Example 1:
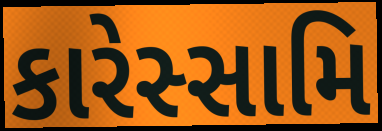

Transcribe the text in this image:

કારેસ્સામિ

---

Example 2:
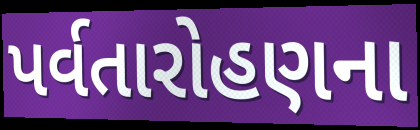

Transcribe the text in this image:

પર્વતારોહણના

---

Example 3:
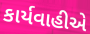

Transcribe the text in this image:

કાર્યવાહીએ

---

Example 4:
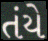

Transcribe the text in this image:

તંયે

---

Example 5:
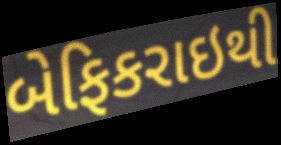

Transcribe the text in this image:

બેફિકરાઇથી